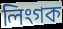
লিংগক